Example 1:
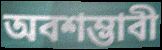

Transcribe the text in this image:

অবশম্ভাবী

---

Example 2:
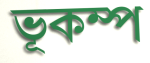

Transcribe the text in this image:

ভূকম্প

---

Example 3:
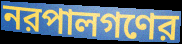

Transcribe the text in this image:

নরপালগণের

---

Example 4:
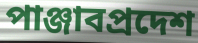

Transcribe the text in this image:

পাঞ্জাবপ্রদেশ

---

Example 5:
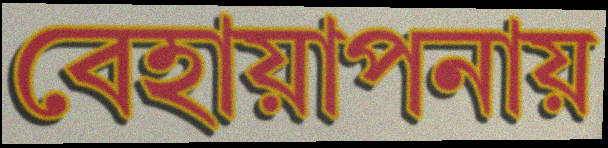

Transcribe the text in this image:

বেহায়াপনায়